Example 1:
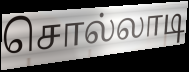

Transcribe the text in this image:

சொல்லாடி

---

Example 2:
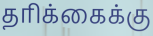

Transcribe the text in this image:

தரிக்கைக்கு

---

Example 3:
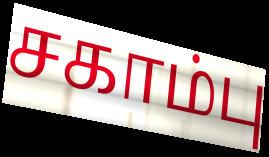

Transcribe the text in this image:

சகாம்பு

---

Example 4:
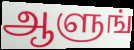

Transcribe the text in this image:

ஆளுங்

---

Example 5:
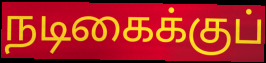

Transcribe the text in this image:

நடிகைக்குப்